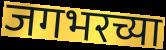
जगभरच्या